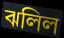
ঝলিল